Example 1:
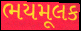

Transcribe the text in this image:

ભયમૂલક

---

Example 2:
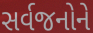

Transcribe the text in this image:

સર્વજનોને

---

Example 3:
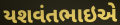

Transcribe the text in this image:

યશવંતભાઇએ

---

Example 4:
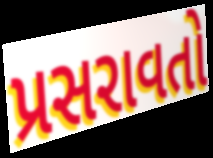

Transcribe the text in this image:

પ્રસરાવતો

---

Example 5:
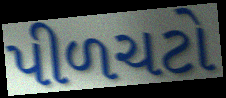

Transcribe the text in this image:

પીળચટો